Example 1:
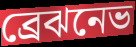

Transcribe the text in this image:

ব্রেঝনেভ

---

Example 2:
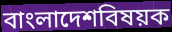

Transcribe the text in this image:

বাংলাদেশবিষয়ক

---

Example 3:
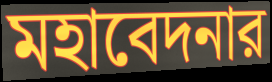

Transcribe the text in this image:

মহাবেদনার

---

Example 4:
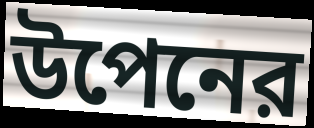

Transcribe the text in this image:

উপেনের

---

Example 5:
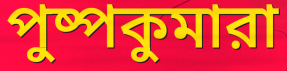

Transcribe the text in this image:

পুষ্পকুমারা